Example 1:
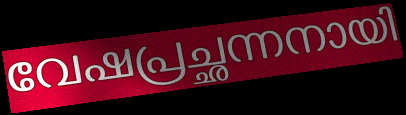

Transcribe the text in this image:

വേഷപ്രച്ഛന്നനായി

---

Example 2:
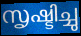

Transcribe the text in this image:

സൃഷ്ടിച്ചു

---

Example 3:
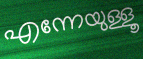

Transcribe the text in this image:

എന്നേയുള്ളൂ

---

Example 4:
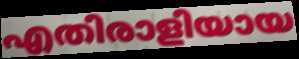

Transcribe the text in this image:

എതിരാളിയായ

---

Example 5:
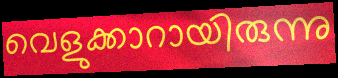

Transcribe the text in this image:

വെളുക്കാറായിരുന്നു